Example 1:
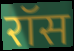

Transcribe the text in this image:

रॉस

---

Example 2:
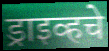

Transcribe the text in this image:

ड्राइव्हचे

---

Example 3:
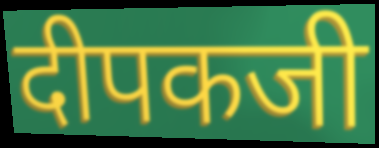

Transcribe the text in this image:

दीपकजी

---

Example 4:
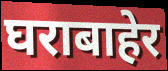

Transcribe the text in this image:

घराबाहेर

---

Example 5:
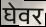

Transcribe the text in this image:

घेवर